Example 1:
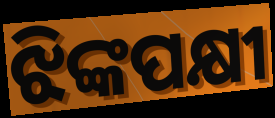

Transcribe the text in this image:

ଝିଙ୍କପକ୍ଷୀ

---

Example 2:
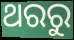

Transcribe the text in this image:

ଥରରୁ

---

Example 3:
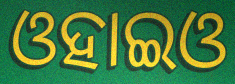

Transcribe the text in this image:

ଓହାଇଓ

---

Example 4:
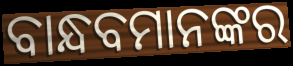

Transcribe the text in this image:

ବାନ୍ଧବମାନଙ୍କର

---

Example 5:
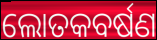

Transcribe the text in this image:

ଲୋତକବର୍ଷଣ